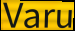
Varu